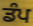
ਡੰਪ